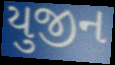
યુજીન